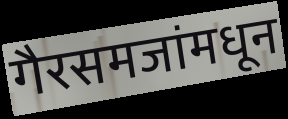
गैरसमजांमधून